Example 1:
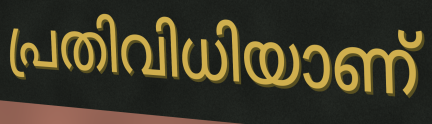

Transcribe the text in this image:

പ്രതിവിധിയാണ്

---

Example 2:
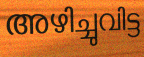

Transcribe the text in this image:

അഴിച്ചുവിട്ട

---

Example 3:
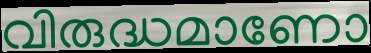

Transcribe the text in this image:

വിരുദ്ധമാണോ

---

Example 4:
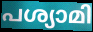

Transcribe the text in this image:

പശ്യാമി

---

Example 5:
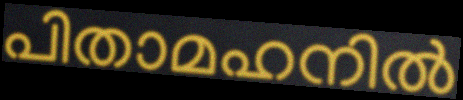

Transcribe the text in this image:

പിതാമഹനിൽ